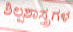
ಶಿಲ್ಪಶಾಸ್ತ್ರಗಳ